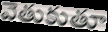
వెతుకుతూ